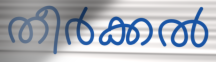
തീർക്കൽ